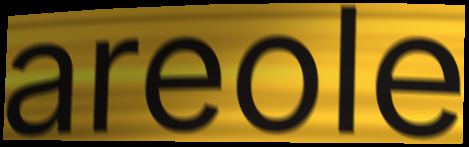
areole